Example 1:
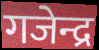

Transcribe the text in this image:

गजेन्‍द्र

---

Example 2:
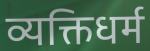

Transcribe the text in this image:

व्यक्तिधर्म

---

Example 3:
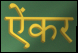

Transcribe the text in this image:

ऐंकर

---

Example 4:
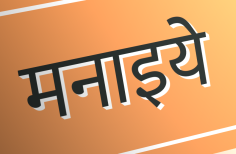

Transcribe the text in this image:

मनाइये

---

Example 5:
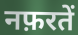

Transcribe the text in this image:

नफ़रतें